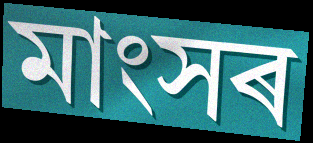
মাংসৰ